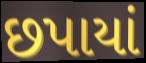
છપાયાં